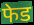
फेड